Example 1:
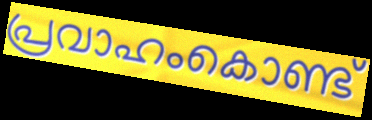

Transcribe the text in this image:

പ്രവാഹംകൊണ്ട്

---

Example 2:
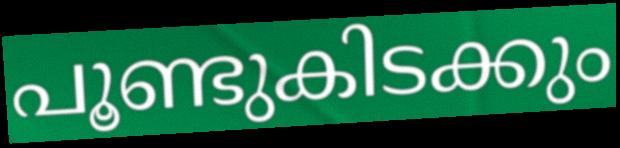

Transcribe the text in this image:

പൂണ്ടുകിടക്കും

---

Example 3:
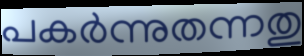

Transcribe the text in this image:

പകർന്നുതന്നതു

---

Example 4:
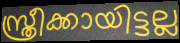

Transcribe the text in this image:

സ്ത്രീക്കായിട്ടല്ല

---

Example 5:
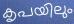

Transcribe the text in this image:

കൃപയിലും